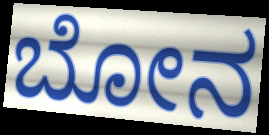
ಬೋನ